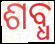
ଶବ୍ଧ